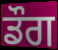
ਡੌਗ